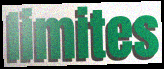
limites